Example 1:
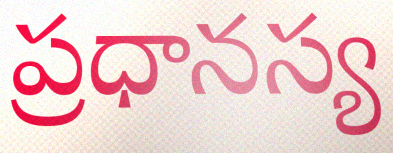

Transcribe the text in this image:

ప్రధానస్య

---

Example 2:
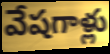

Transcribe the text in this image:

వేషగాళ్లు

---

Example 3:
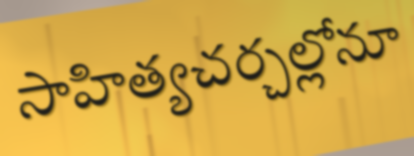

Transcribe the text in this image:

సాహిత్యచర్చల్లోనూ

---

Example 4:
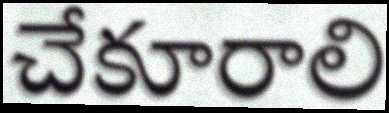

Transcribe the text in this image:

చేకూరాలి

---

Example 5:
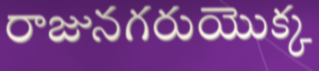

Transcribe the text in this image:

రాజునగరుయొక్క